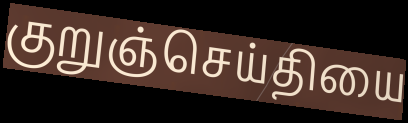
குறுஞ்செய்தியை